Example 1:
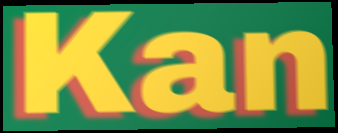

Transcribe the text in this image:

Kan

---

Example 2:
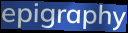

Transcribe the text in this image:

epigraphy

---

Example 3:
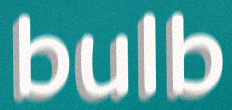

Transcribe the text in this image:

bulb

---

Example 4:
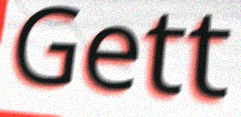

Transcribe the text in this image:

Gett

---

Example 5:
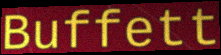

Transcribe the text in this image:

Buffett